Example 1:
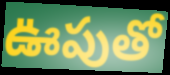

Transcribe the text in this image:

ఊపుతో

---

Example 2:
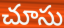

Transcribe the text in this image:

చూసు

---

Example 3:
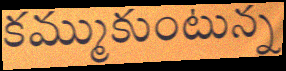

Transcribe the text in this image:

కమ్ముకుంటున్న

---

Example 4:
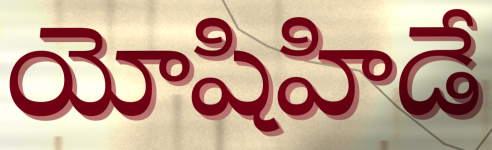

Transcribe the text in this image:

యోషిహిడే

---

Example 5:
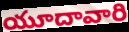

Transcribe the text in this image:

యూదావారి